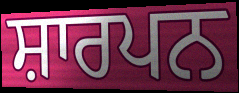
ਸ਼ਾਰਪਨ